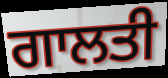
ਗਾਲਤੀ